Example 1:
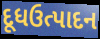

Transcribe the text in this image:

દૂધઉત્પાદન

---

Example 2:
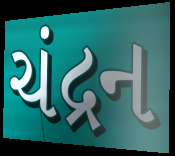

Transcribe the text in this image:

ચંદ્રન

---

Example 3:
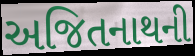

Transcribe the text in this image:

અજિતનાથની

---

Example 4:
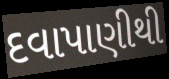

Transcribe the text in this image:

દવાપાણીથી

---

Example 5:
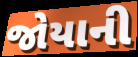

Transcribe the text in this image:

જોયાની